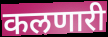
कलणारी